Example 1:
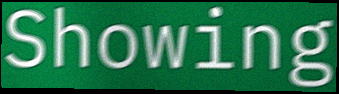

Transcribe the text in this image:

Showing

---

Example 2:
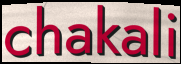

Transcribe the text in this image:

chakali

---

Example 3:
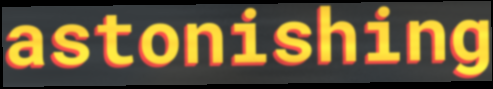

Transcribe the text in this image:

astonishing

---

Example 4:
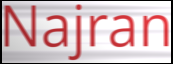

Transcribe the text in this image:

Najran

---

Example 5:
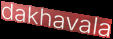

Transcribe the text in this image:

dakhavala